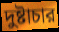
দুষ্টাচার